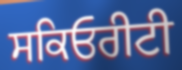
ਸਕਿਓਰੀਟੀ